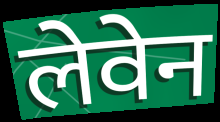
लेवेन